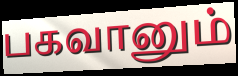
பகவானும்